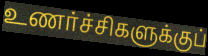
உணர்ச்சிகளுக்குப்